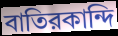
বাতিরকান্দি